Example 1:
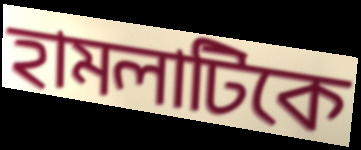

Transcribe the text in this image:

হামলাটিকে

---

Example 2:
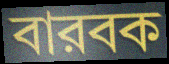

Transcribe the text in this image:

বারবক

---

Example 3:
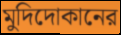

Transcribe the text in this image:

মুদিদোকানের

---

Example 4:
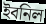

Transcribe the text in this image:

ইবনিল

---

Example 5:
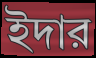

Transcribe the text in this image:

ইদার